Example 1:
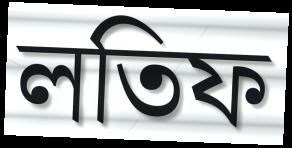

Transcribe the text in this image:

লতিফ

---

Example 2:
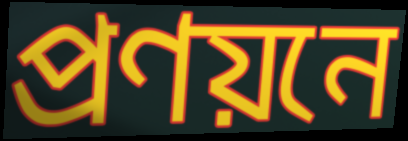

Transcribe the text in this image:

প্ৰণয়নে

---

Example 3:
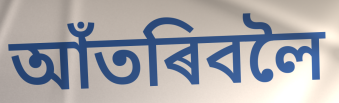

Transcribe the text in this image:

আঁতৰিবলৈ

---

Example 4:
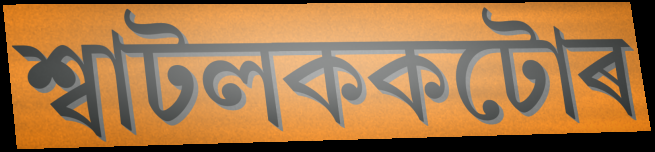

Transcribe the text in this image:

শ্বাটলককটোৰ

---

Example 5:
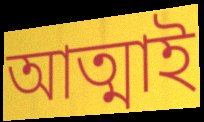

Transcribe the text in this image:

আত্মাই